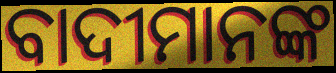
ବାଦୀମାନଙ୍କ